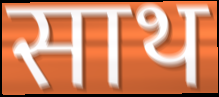
साथ